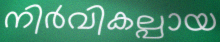
നിർവികല്പായ